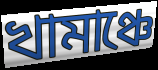
খামাঞ্চে